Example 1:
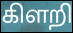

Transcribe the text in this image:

கிளறி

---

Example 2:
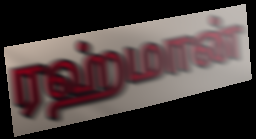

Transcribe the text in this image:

ரஹ்மான்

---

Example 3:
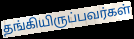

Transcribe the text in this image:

தங்கியிருப்பவர்கள்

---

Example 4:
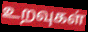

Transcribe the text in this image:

உறவுகள்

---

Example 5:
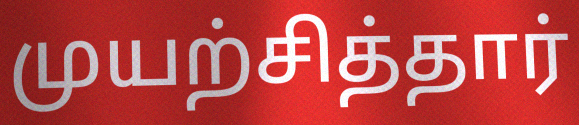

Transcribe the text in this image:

முயற்சித்தார்